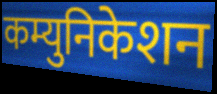
कम्युनिकेशन